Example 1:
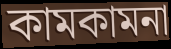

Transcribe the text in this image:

কামকামনা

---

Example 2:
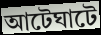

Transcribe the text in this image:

আটেঘাটে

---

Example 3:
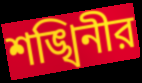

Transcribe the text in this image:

শঙ্খিনীর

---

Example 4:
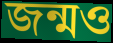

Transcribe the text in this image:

জন্মও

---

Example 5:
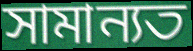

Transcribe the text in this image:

সামান্যত